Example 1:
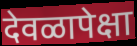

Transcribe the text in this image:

देवळापेक्षा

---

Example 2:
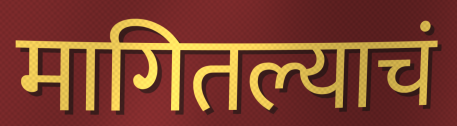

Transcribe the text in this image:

मागितल्याचं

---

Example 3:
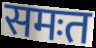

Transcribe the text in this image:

समःत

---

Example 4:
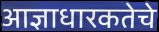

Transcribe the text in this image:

आज्ञाधारकतेचे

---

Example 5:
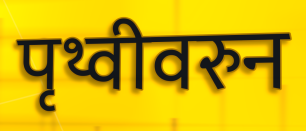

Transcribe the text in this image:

पृथ्वीवरुन